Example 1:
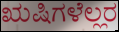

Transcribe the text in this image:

ಋಷಿಗಳೆಲ್ಲರ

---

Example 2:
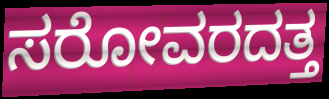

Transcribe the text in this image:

ಸರೋವರದತ್ತ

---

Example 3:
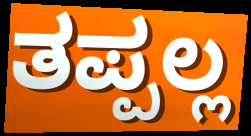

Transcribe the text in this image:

ತಪ್ಪಲ್ಲ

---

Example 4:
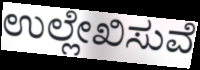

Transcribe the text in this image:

ಉಲ್ಲೇಖಿಸುವೆ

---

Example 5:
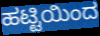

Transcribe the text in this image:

ಹಟ್ಟಿಯಿಂದ